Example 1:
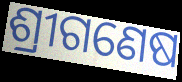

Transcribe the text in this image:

ଶ୍ରୀଗଣେଷ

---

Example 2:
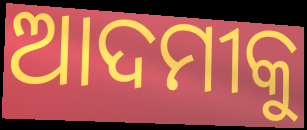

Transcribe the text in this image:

ଆଦମୀକୁ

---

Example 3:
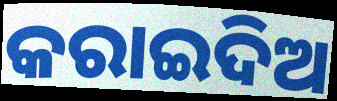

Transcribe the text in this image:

କରାଇଦିଅ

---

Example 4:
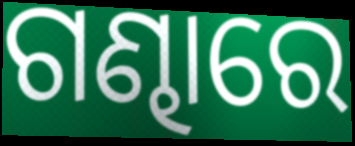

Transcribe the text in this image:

ଗଣ୍ଢାରେ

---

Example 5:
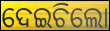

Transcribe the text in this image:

ଦେଇଚିଲୋ